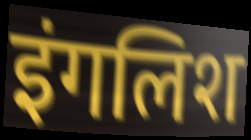
इंगलिश